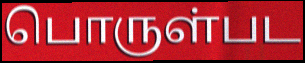
பொருள்பட